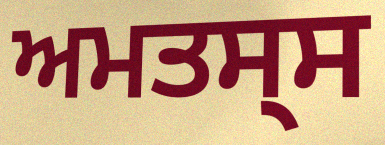
ਅਮਤਸ੍ਸ